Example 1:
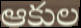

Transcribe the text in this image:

ఆకుల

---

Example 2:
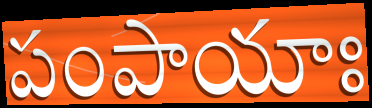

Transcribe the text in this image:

పంపాయాః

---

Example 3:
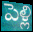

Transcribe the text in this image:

పెళ్లి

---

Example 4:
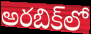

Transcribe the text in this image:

అరబిక్‌లో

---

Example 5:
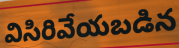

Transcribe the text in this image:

విసిరివేయబడిన